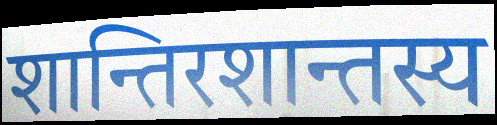
शान्तिरशान्तस्य